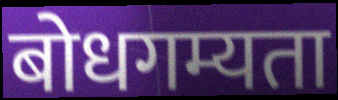
बोधगम्यता